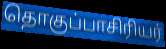
தொகுப்பாசிரியர்